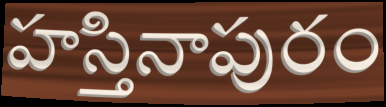
హస్తినాపురం